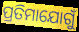
ପ୍ରତିମାଯୋଗୁଁ